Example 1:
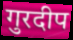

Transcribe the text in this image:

गुरदीप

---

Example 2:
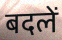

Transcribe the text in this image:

बदलें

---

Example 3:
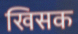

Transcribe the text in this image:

खिसक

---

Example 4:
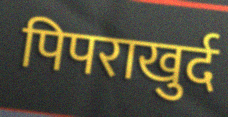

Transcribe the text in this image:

पिपराखुर्द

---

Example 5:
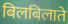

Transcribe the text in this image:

बिलबिलाते